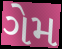
ગેમ